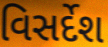
વિસર્દેશ